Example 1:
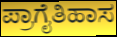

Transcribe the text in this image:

ಪ್ರಾಗೈತಿಹಾಸ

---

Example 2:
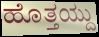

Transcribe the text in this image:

ಹೊತ್ತಯ್ದು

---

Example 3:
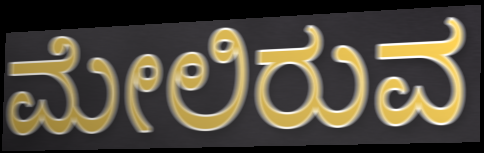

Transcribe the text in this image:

ಮೇಲಿರುವ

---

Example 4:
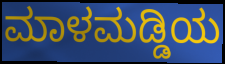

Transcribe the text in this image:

ಮಾಳಮಡ್ಡಿಯ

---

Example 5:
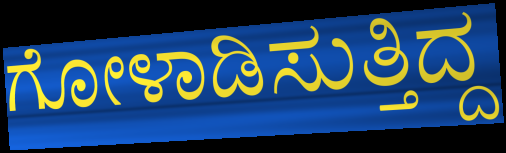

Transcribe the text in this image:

ಗೋಳಾಡಿಸುತ್ತಿದ್ದ